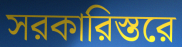
সরকারিস্তরে